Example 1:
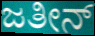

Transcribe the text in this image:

ಜತೀನ್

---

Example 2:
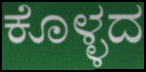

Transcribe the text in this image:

ಕೊಳ್ಳದ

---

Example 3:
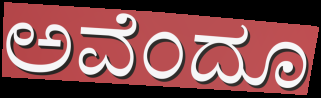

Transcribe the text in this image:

ಅವೆಂದೂ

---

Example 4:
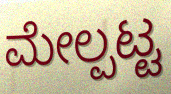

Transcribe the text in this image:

ಮೇಲ್ಪಟ್ಟ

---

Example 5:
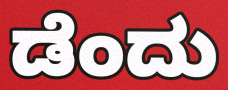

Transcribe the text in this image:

ಡೆಂದು